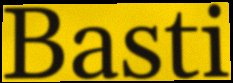
Basti